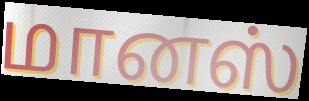
மானஸ்